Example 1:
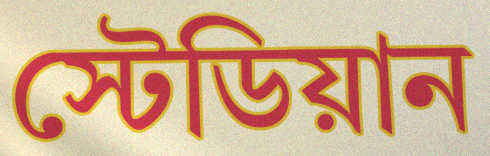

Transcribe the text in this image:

স্টেডিয়ান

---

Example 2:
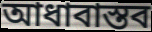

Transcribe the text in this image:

আধাবাস্তব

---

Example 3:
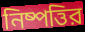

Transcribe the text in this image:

নিষ্পত্তির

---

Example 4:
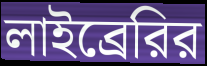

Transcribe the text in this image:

লাইব্রেরির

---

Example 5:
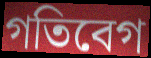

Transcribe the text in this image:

গতিবেগ